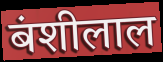
बंशीलाल